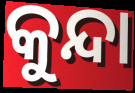
କୁନ୍ଦା